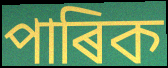
পাৰিক